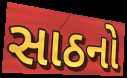
સાઠનો